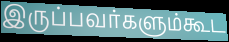
இருப்பவர்களும்கூட